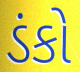
ડંકો